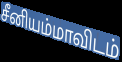
சீனியம்மாவிடம்